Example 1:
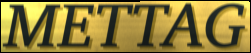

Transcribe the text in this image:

METTAG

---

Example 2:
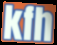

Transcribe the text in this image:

kfh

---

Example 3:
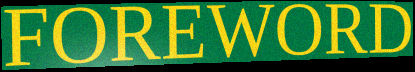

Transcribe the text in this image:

FOREWORD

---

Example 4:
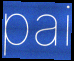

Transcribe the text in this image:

pai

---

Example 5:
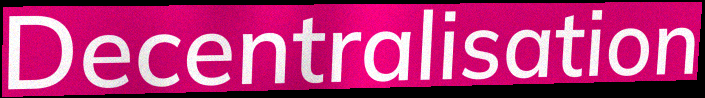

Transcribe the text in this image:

Decentralisation